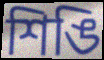
শিঙি